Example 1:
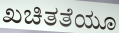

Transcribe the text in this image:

ಖಚಿತತೆಯೂ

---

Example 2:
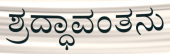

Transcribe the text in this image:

ಶ್ರದ್ಧಾವಂತನು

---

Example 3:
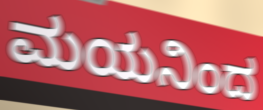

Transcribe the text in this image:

ಮಯನಿಂದ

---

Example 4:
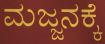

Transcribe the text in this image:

ಮಜ್ಜನಕ್ಕೆ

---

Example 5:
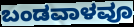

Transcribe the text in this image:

ಬಂಡವಾಳವೂ